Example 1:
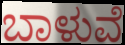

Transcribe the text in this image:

ಬಾಳುವೆ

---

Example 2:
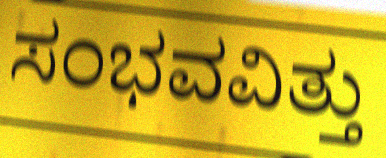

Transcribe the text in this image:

ಸಂಭವವಿತ್ತು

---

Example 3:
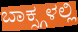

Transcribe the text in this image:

ಬಾಕ್ಸ್ಗಳಲ್ಲಿ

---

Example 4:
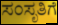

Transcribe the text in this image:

ಸಂಸೃತಿಗೆ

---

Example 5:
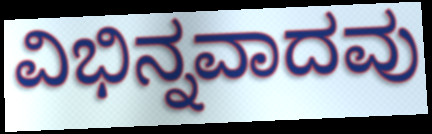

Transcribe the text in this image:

ವಿಭಿನ್ನವಾದವು